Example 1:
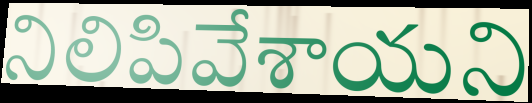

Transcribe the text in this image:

నిలిపివేశాయని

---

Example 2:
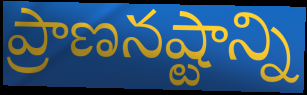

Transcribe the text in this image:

ప్రాణనష్టాన్ని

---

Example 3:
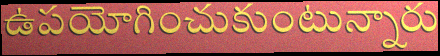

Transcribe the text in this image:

ఉపయోగించుకుంటున్నారు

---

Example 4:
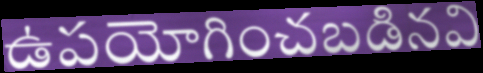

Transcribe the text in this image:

ఉపయోగించబడినవి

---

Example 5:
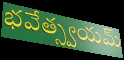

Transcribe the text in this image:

భవేత్స్వయమ్